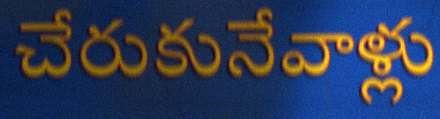
చేరుకునేవాళ్లు